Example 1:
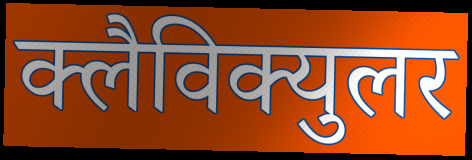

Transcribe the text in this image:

क्लैविक्युलर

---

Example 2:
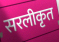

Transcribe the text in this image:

सरलीकृत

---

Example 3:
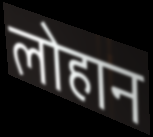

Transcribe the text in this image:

लोहान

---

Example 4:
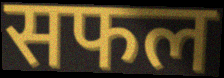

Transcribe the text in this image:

सफल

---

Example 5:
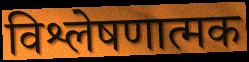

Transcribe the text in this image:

विश्लेषणात्मक